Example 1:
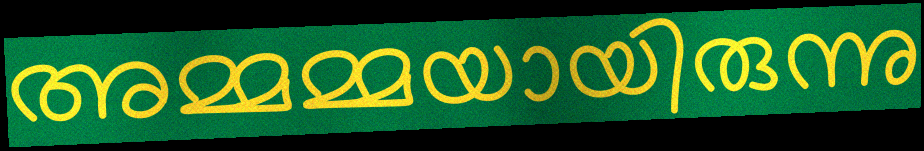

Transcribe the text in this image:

അമ്മമ്മയായിരുന്നു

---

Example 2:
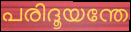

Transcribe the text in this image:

പരിദൂയന്തേ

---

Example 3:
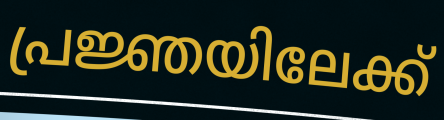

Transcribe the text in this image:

പ്രജ്ഞയിലേക്ക്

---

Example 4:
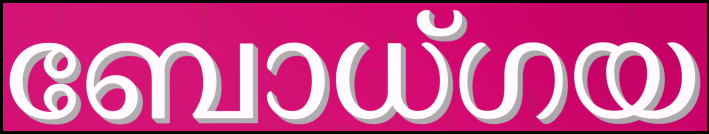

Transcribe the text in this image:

ബോധ്ഗയ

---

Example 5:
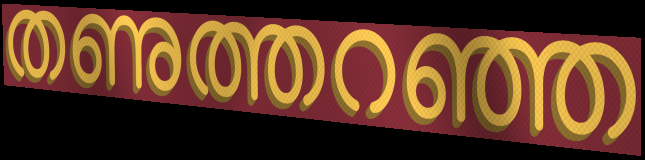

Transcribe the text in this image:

തണുത്തറഞ്ഞ